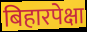
बिहारपेक्षा